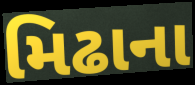
મિઢાના